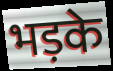
भड़के